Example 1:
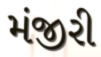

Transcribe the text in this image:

મંજીરી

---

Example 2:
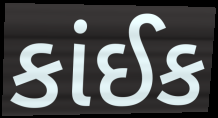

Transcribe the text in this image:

કાંઈક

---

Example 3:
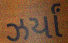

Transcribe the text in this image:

ઝર્યાં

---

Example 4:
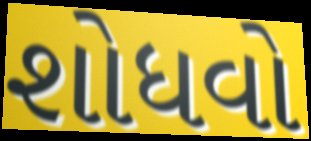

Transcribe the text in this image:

શોધવો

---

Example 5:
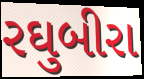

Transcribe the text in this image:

રઘુબીરા